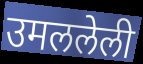
उमललेली